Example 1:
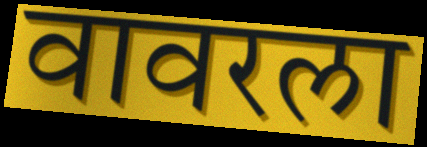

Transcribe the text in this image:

वावरला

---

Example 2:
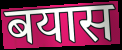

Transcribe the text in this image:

बयास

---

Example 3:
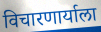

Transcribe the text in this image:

विचारणार्याला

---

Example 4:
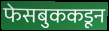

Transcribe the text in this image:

फेसबुककडून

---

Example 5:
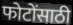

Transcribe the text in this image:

फोटोंसाठी